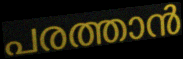
പരത്താൻ